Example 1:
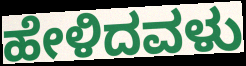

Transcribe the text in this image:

ಹೇಳಿದವಳು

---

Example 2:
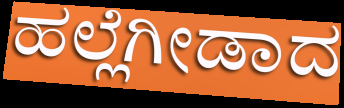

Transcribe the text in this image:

ಹಲ್ಲೆಗೀಡಾದ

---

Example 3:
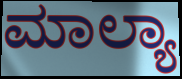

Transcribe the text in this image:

ಮಾಲ್ಯಾ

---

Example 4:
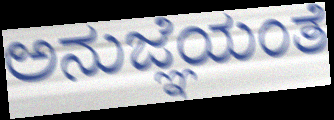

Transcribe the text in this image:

ಅನುಜ್ಞೆಯಂತೆ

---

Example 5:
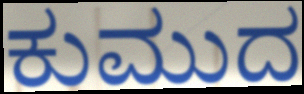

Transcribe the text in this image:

ಕುಮುದ